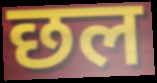
छल